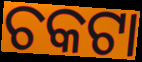
ଚକଟା